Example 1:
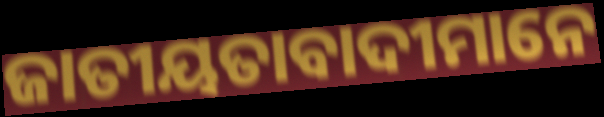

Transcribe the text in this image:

ଜାତୀୟତାବାଦୀମାନେ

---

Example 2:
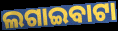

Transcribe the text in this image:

ଲଗାଇବାଟା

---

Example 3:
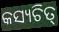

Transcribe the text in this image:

କସ୍ୟଚିତ୍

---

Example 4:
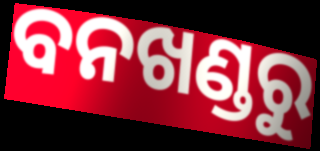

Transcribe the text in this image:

ବନଖଣ୍ଡରୁ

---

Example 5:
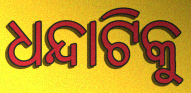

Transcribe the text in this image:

ଧନ୍ଦାଟିକୁ